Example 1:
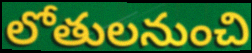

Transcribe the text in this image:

లోతులనుంచి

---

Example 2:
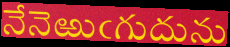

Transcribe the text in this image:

నేనెఱుఁగుదును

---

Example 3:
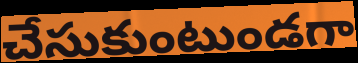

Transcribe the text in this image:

చేసుకుంటుండగా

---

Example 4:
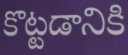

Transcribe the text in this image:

కొట్టడానికి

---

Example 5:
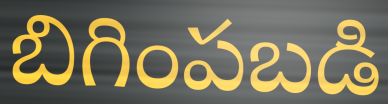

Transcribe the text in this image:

బిగింపబడి